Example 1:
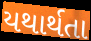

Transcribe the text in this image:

યથાર્થતા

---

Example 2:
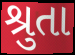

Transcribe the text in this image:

શ્રુતા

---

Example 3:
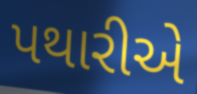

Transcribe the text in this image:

પથારીએ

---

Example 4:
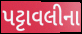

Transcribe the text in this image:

પટ્ટાવલીના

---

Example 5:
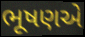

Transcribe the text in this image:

ભૂષણએ